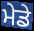
ਮੇਡੇ